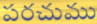
పరచుము